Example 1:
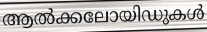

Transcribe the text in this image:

ആൽക്കലോയിഡുകൾ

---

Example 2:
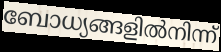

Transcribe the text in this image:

ബോധ്യങ്ങളിൽനിന്ന്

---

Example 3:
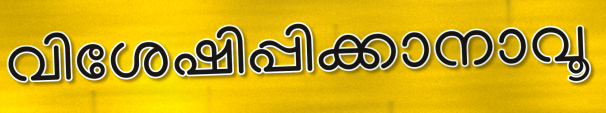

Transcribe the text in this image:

വിശേഷിപ്പിക്കാനാവൂ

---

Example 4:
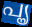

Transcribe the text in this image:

പൄ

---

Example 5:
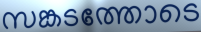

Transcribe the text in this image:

സങ്കടത്തോടെ